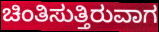
ಚಿಂತಿಸುತ್ತಿರುವಾಗ